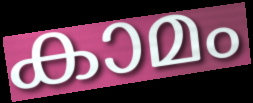
കാമം